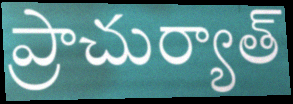
ప్రాచుర్యాత్